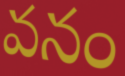
వనం